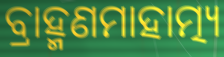
ବ୍ରାହ୍ମଣମାହାତ୍ମ୍ୟ